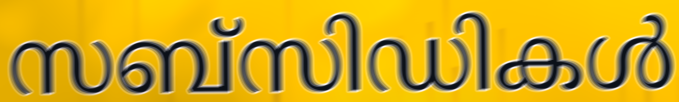
സബ്സിഡികൾ